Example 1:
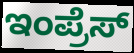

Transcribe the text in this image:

ಇಂಪ್ರೆಸ್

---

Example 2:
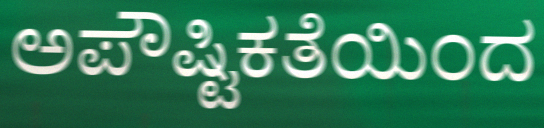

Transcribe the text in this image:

ಅಪೌಷ್ಟಿಕತೆಯಿಂದ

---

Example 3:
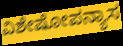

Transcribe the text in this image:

ವಿಶೇಷೋಪನ್ಯಾಸ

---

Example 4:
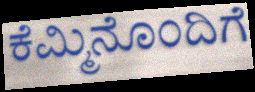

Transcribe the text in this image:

ಕೆಮ್ಮಿನೊಂದಿಗೆ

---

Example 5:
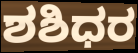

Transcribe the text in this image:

ಶಶಿಧರ